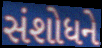
સંશોધને